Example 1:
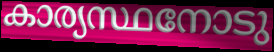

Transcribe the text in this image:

കാര്യസ്ഥനോടു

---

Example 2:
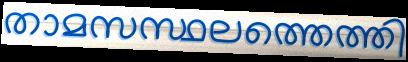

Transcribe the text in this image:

താമസസ്ഥലത്തെത്തി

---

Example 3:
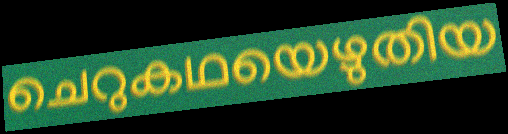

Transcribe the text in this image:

ചെറുകഥയെഴുതിയ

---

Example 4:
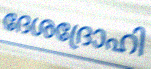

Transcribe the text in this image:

ദേശദ്രോഹി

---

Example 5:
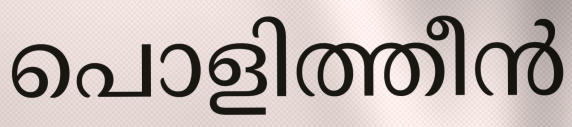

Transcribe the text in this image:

പൊളിത്തീൻ